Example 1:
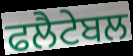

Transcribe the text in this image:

ਫਲੈਟੇਬਲ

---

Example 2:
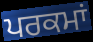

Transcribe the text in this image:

ਪਰਕਮਾਂ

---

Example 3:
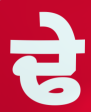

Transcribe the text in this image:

ਢੇ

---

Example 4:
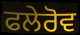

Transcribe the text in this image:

ਫਲੇਰੋਵ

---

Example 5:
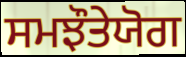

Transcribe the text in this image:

ਸਮਝੌਤੇਯੋਗ